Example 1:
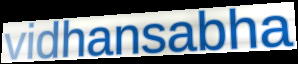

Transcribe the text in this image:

vidhansabha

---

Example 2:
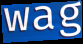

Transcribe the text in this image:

wag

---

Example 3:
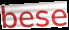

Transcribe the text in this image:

bese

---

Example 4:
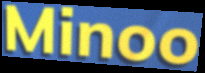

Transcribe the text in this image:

Minoo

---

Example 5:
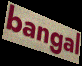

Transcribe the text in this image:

bangal